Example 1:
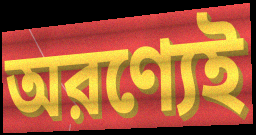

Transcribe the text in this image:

অরণ্যেই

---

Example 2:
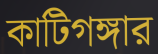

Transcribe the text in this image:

কাটিগঙ্গার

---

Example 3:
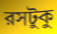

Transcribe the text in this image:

রসটুকু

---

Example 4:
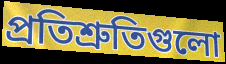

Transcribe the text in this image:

প্রতিশ্রুতিগুলো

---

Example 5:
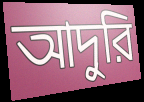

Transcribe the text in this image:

আদুরি